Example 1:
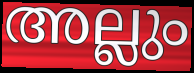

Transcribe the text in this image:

അല്ലും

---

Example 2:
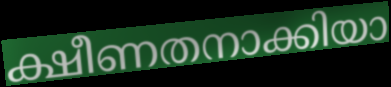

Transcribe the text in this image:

ക്ഷീണതനാക്കിയാ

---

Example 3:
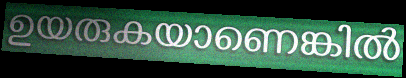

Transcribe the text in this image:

ഉയരുകയാണെങ്കിൽ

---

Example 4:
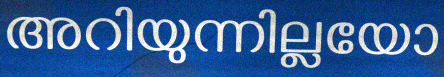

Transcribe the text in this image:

അറിയുന്നില്ലയോ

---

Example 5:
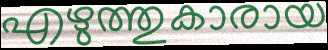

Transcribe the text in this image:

എഴുത്തുകാരായ